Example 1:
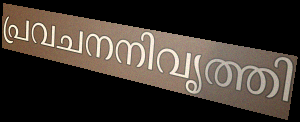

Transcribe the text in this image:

പ്രവചനനിവൃത്തി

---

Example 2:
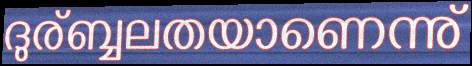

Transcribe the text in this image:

ദുര്ബ്ബലതയാണെന്നു്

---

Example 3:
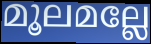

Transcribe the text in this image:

മൂലമല്ലേ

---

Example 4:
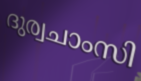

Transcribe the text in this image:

ദുര്വചാംസി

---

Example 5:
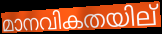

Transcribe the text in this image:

മാനവികതയില്